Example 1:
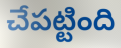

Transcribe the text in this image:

చేపట్టింది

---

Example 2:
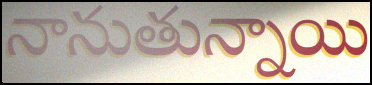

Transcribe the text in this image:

నానుతున్నాయి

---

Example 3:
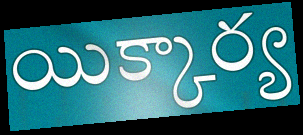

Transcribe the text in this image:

యిక్కార్య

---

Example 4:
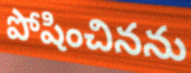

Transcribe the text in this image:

పోషించినను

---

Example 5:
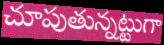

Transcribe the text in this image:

చూపుతున్నట్టుగా